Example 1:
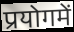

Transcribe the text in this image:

प्रयोगमें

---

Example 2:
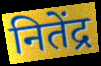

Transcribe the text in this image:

नितेंद्र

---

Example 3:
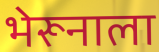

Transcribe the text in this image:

भेरूनाला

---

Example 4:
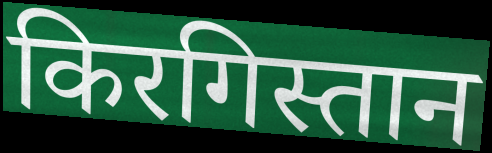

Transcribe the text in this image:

किरगिस्तान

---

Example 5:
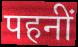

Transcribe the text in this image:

पहनीं